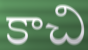
కాచి